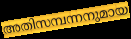
അതിസമ്പന്നനുമായ